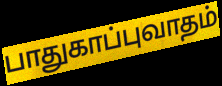
பாதுகாப்புவாதம்